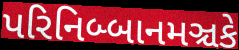
પરિનિબ્બાનમઞ્ચકે